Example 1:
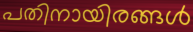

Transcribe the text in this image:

പതിനായിരങ്ങൾ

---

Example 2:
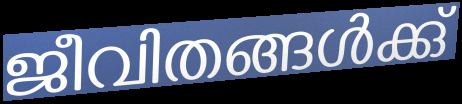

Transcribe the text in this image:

ജീവിതങ്ങൾക്കു്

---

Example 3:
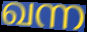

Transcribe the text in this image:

ഖന്ന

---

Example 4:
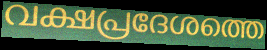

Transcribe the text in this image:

വക്ഷപ്രദേശത്തെ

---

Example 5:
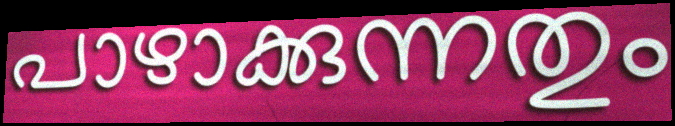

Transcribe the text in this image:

പാഴാക്കുന്നതും